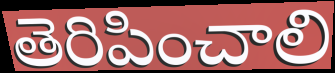
తెరిపించాలి